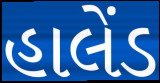
હાલેંડ